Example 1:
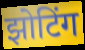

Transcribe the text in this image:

झोटिंग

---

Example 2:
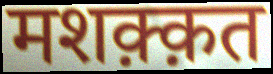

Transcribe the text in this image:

मशक़्क़त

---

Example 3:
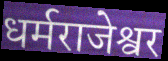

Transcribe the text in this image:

धर्मराजेश्वर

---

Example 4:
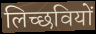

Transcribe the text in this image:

लिच्छवियों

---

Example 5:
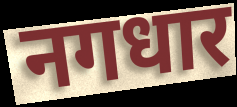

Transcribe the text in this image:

नगधार